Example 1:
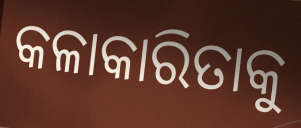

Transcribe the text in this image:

କଳାକାରିତାକୁ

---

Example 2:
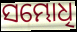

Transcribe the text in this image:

ସମ୍ଭୋଧି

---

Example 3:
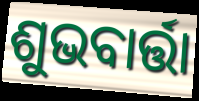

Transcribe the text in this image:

ଶୁଭବାର୍ତ୍ତା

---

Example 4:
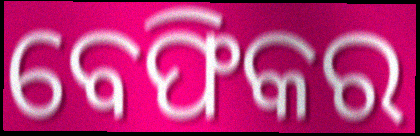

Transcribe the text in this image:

ବେଫିକର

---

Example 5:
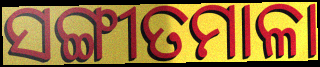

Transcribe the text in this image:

ସଙ୍ଗୀତମାଳା